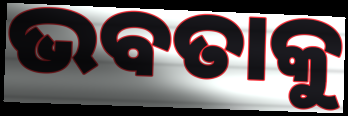
ଭବତାକୁ